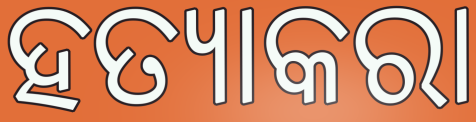
ହତ୍ୟାକରା